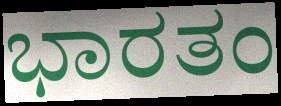
ಭಾರತಂ